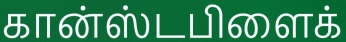
கான்ஸ்டபிளைக்